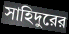
সাহিদুরের